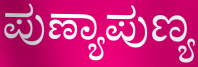
ಪುಣ್ಯಾಪುಣ್ಯ